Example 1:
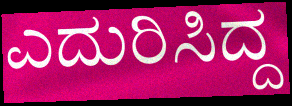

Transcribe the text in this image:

ಎದುರಿಸಿದ್ದ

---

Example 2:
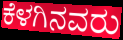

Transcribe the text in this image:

ಕೆಳಗಿನವರು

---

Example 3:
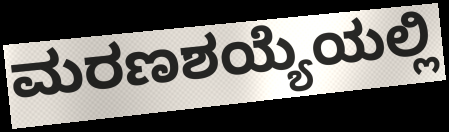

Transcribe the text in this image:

ಮರಣಶಯ್ಯೆಯಲ್ಲಿ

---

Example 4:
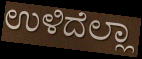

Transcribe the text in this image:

ಉಳಿದೆಲ್ಲಾ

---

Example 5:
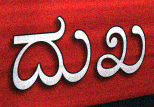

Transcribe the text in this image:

ದುಖ